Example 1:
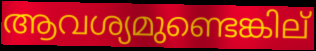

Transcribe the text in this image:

ആവശ്യമുണ്ടെങ്കില്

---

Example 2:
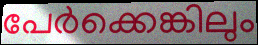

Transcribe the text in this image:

പേർക്കെങ്കിലും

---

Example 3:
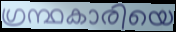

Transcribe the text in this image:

ഗ്രന്ഥകാരിയെ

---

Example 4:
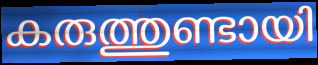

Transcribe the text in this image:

കരുത്തുണ്ടായി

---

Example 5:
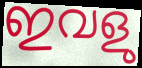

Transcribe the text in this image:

ഇവളു